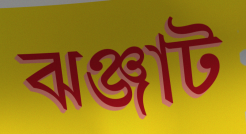
ঝঞ্জাট